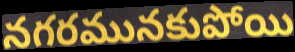
నగరమునకుపోయి